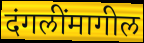
दंगलींमागील